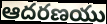
ఆదరణయు